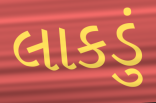
લાકડું